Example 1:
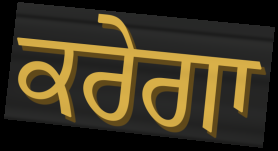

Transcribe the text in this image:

ਕਰੇਗਾ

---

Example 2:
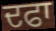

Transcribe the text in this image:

ਦਫਾ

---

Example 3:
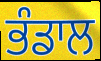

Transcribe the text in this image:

ਭੰਡਾਲ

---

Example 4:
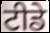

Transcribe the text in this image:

ਟੀਡੇ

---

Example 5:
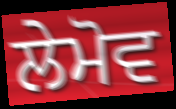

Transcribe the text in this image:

ਲੇਮੋਵ